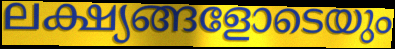
ലക്ഷ്യങ്ങളോടെയും